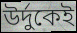
উর্দুকেই